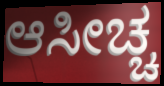
ಆಸೀಚ್ಚ